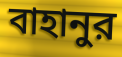
বাহানুর